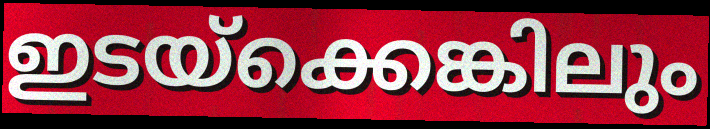
ഇടയ്ക്കെങ്കിലും